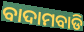
ବାଦାମବାଡି